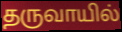
தருவாயில்